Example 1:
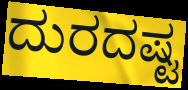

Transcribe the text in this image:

ದುರದಷ್ಟ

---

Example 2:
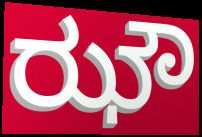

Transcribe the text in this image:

ಝೌ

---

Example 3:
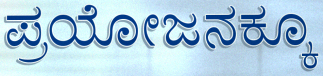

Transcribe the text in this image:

ಪ್ರಯೋಜನಕ್ಕೂ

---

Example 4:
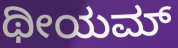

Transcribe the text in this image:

ಥೀಯಮ್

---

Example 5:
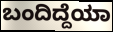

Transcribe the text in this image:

ಬಂದಿದ್ದೆಯಾ